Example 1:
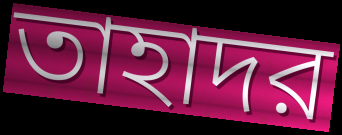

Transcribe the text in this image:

তাহাদর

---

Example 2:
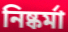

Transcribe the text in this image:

নিষ্কর্মা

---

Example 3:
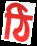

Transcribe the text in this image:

ঠি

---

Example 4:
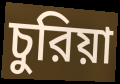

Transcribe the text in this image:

চুরিয়া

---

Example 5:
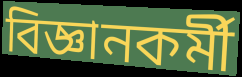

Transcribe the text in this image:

বিজ্ঞানকর্মী